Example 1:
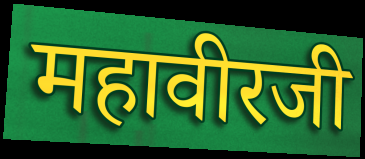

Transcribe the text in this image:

महावीरजी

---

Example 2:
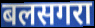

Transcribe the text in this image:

बलसगरा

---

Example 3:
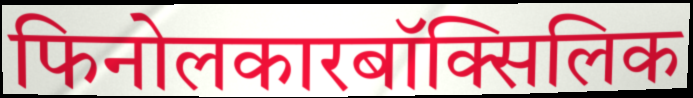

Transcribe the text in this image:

फिनोलकारबॉक्सिलिक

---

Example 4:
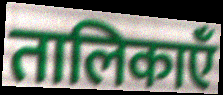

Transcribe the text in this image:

तालिकाएँ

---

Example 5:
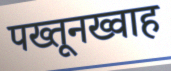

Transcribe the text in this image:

पख्तूनख्वाह